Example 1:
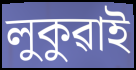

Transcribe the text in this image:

লুকুৱাই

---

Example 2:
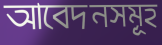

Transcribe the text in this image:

আবেদনসমূহ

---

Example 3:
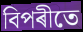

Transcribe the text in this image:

বিপৰীতে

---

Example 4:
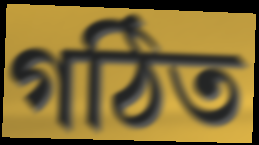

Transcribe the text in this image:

গঠিত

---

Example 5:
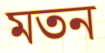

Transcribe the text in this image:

মতন